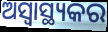
ଅସ୍ବାସ୍ଥ୍ୟକର